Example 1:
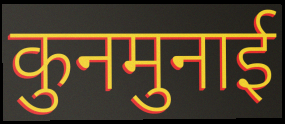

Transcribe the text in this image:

कुनमुनाई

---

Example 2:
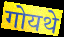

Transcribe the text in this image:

गोयथे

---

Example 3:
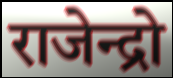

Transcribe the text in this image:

राजेन्द्रो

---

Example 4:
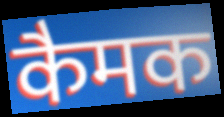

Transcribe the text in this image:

कैमक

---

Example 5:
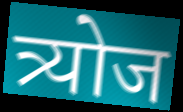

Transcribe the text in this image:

त्र्योज